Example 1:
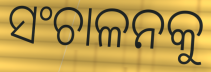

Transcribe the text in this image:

ସଂଚାଳନକୁ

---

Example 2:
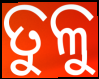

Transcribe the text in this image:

ତୁଳୁ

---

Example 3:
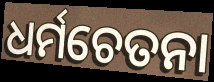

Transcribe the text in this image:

ଧର୍ମଚେତନା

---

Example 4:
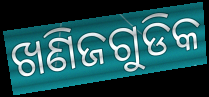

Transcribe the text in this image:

ଖଣିଜଗୁଡିକ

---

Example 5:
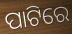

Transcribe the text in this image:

ପାଟିରେ